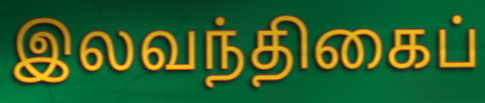
இலவந்திகைப்